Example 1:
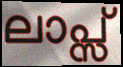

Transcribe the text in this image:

ലാപ്സ്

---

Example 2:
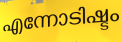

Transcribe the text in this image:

എന്നോടിഷ്ടം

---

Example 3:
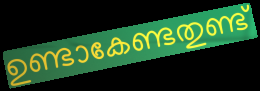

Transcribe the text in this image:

ഉണ്ടാകേണ്ടതുണ്ട്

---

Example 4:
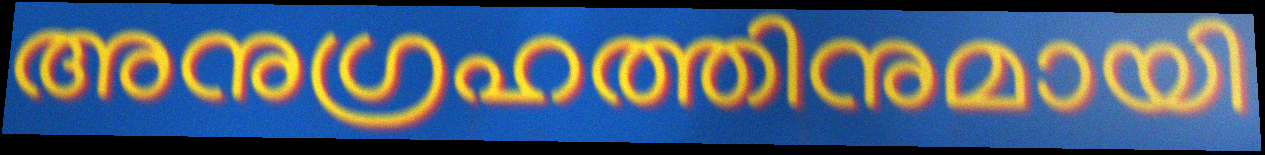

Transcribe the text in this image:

അനുഗ്രഹത്തിനുമായി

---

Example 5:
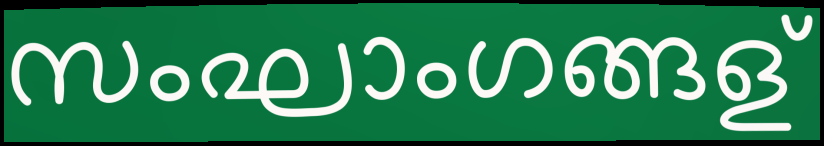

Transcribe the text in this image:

സംഘാംഗങ്ങള്